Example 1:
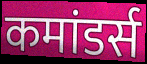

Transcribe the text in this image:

कमांडर्स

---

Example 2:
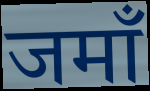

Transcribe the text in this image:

जमाँ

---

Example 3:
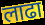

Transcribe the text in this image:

लाढा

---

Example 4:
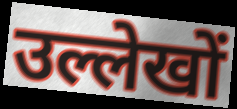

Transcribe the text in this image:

उल्लेखों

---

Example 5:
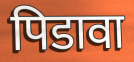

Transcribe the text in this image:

पिडावा